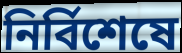
নিৰ্বিশেষে